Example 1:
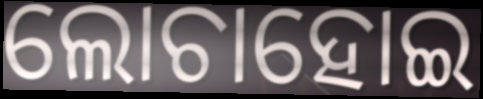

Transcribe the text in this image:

ଲୋଚାହୋଇ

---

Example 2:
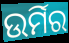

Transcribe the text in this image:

ଉର୍ମିର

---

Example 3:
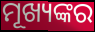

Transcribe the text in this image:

ମୂଖ୍ୟଙ୍କର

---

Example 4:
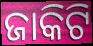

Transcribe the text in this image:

ଜାକିଟି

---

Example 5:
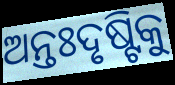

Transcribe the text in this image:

ଅନ୍ତଃଦୃଷ୍ଟିକୁ